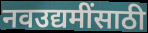
नवउद्यमींसाठी